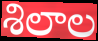
శిలాల